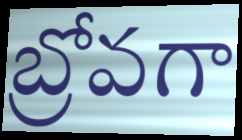
బ్రోవగా